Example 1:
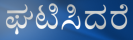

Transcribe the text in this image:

ಘಟಿಸಿದರೆ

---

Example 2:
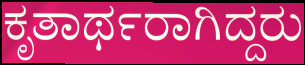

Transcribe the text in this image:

ಕೃತಾರ್ಥರಾಗಿದ್ದರು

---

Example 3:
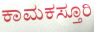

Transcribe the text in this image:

ಕಾಮಕಸ್ತೂರಿ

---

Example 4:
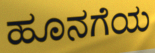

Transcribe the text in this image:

ಹೂನಗೆಯ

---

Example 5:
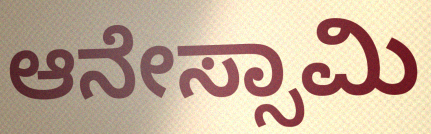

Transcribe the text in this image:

ಆನೇಸ್ಸಾಮಿ